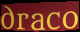
draco